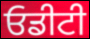
ਓਡੀਟੀ